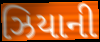
ઝિયાની